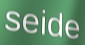
seide